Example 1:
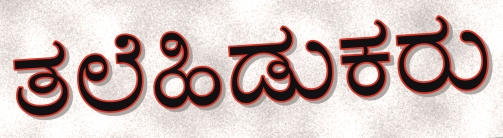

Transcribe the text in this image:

ತಲೆಹಿಡುಕರು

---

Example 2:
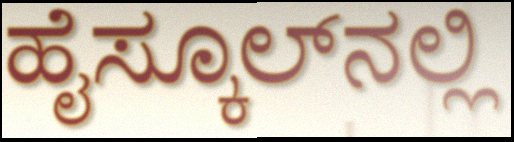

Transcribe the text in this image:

ಹೈಸ್ಕೂಲ್‌ನಲ್ಲಿ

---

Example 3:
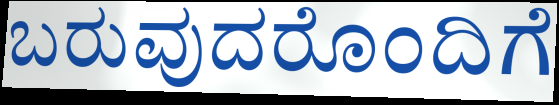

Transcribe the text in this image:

ಬರುವುದರೊಂದಿಗೆ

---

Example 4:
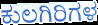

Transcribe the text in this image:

ಕುಲಗಿರಿಗಳ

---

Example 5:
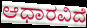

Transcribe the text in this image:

ಆಧಾರವಿದೆ